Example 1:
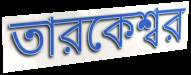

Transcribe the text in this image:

তারকেশ্বর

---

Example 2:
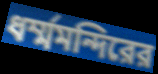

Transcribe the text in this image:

ধর্ম্মমন্দিরের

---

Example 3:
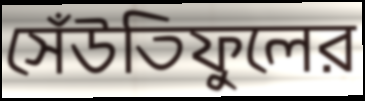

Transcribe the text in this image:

সেঁউতিফুলের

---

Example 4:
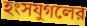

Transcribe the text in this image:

হংসযুগলের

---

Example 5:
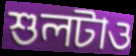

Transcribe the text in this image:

শুলটাও